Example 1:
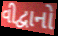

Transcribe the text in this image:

વીદ્વાનો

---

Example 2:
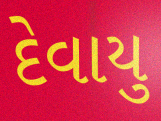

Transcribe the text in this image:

દેવાયુ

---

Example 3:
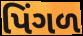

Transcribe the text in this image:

પિંગળ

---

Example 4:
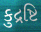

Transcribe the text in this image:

કુદ્રષ્ટિ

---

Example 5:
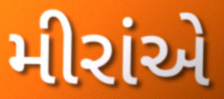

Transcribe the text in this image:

મીરાંએ